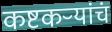
कष्टकऱ्यांचं